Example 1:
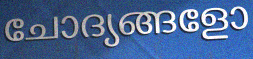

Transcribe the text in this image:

ചോദ്യങ്ങളോ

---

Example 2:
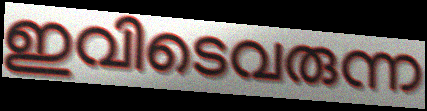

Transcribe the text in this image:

ഇവിടെവരുന്ന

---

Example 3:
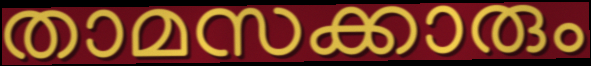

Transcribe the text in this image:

താമസക്കാരും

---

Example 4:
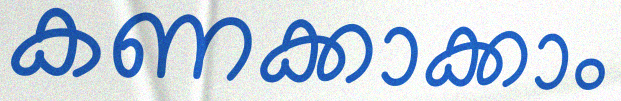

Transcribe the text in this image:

കണക്കാക്കാം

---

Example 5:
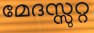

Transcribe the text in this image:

മേദസ്സുറ്റ